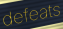
defeats